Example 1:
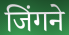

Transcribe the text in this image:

जिंगने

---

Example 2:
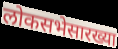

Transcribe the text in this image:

लोकसभेसारख्या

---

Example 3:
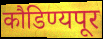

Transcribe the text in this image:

कौडिण्यपूर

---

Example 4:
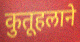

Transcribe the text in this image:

कुतूहलाने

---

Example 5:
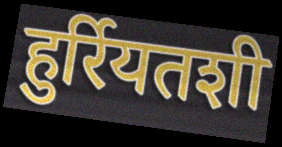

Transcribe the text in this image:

हुर्रियतशी